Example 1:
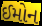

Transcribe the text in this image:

ઈમોન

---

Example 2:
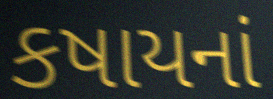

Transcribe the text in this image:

કષાયનાં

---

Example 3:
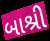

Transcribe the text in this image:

બાશ્રી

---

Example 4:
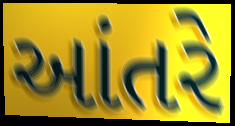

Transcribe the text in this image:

આંતરે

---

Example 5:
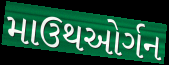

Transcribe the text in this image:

માઉથઓર્ગન